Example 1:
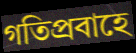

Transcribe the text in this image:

গতিপ্রবাহে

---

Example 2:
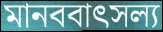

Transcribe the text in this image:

মানববাৎসল্য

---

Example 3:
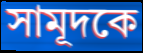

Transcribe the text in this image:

সামূদকে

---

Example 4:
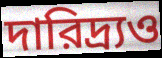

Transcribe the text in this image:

দারিদ্র্যও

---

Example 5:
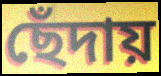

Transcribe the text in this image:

ছেঁদায়